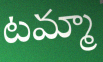
టమ్మా